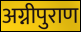
अग्नीपुराण